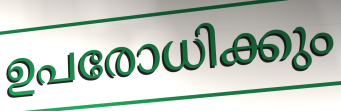
ഉപരോധിക്കും